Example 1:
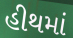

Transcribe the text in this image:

હીથમાં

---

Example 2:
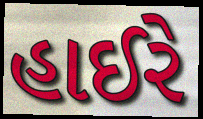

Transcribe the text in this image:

હાઈરે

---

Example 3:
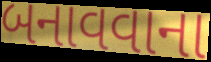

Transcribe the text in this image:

બનાવવાના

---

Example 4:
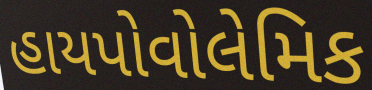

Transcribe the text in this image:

હાયપોવોલેમિક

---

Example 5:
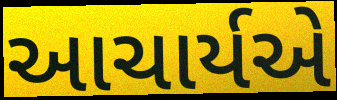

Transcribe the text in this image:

આચાર્યએ